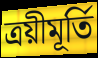
ত্ৰয়ীমূৰ্তি